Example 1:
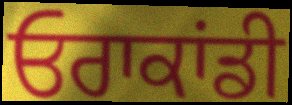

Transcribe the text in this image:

ਓਰਾਕਾਂਡੀ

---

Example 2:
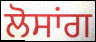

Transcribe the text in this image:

ਲੋਸਾਂਗ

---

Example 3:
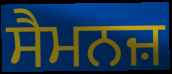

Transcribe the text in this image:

ਸੈਮਨਜ਼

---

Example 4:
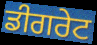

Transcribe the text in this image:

ਡੀਗਰੇਟ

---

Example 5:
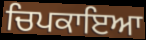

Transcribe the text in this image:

ਚਿਪਕਾਇਆ